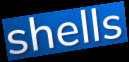
shells